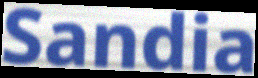
Sandia